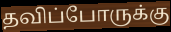
தவிப்போருக்கு